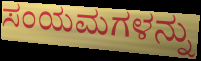
ಸಂಯಮಗಳನ್ನು